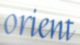
orient